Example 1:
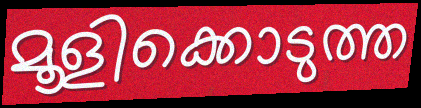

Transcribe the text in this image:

മൂളിക്കൊടുത്ത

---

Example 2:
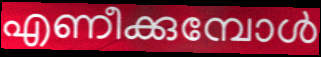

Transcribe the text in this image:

എണീക്കുമ്പോൾ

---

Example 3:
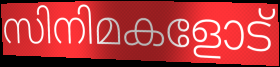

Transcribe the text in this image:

സിനിമകളോട്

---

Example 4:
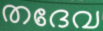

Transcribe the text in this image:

തദേവ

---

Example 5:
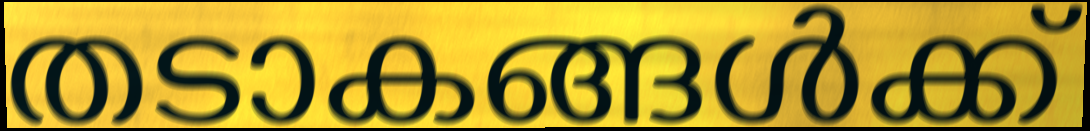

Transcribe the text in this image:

തടാകങ്ങൾക്ക്